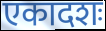
एकादशः